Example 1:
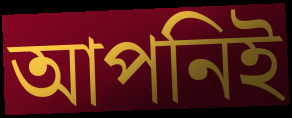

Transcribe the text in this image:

আপনিই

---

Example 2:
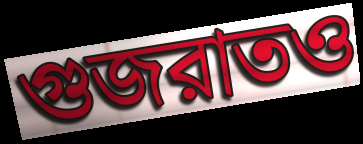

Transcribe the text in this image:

গুজরাতও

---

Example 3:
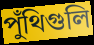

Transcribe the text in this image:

পুঁথিগুলি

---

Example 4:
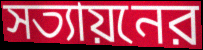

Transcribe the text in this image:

সত্যায়নের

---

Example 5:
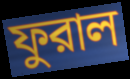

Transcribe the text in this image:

ফুরাল